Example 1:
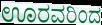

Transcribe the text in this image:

ಊರವರಿಂದ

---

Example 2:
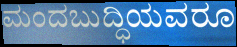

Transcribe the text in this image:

ಮಂದಬುದ್ಧಿಯವರೂ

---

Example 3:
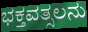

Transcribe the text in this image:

ಭಕ್ತವತ್ಸಲನು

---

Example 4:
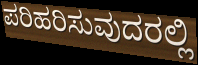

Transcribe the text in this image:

ಪರಿಹರಿಸುವುದರಲ್ಲಿ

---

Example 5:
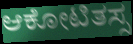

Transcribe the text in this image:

ಆಕೋಟಿತಸ್ಸ